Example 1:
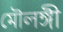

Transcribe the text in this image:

মৌলঙ্গী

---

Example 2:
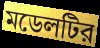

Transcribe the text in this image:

মডেলটির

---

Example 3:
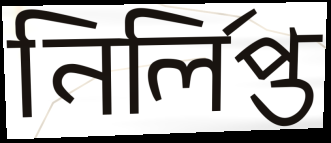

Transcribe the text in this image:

নির্লিপ্ত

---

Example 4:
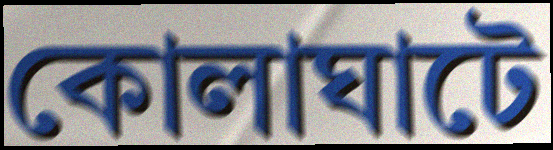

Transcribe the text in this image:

কোলাঘাটে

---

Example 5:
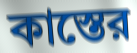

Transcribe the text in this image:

কাস্তের